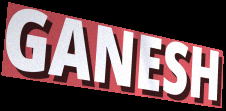
GANESH